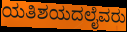
ಯತಿಶಯದಲೈವರು